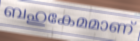
ബഹുകേമമാണ്